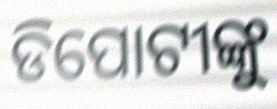
ଡିପୋଟୀଙ୍କୁ